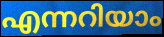
എന്നറിയാം